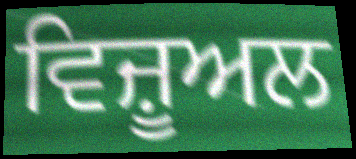
ਵਿਜ਼ੂਅਲ